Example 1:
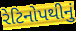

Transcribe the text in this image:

રેટિનોપથીનું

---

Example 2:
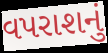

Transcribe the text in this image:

વપરાશનું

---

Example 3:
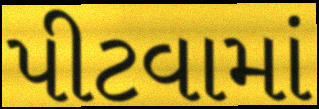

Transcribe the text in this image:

પીટવામાં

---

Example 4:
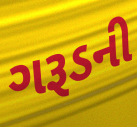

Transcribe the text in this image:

ગરૂડની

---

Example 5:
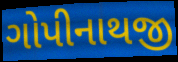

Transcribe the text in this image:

ગોપીનાથજી